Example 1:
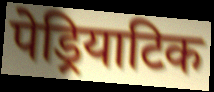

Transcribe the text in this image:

पेड्रियाटिक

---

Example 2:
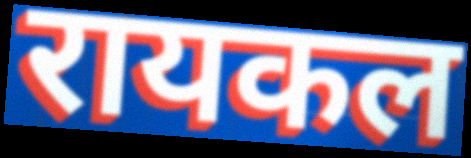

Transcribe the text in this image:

रायकल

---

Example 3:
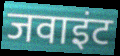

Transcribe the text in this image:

जवाइंट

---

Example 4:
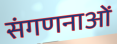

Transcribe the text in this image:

संगणनाओं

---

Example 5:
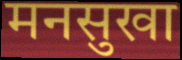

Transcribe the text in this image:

मनसुखा